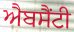
ਐਬਸੈਂਟੀ